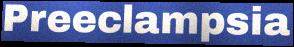
Preeclampsia